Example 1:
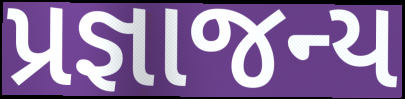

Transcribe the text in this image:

પ્રજ્ઞાજન્ય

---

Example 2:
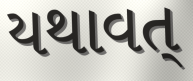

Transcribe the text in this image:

યથાવત્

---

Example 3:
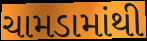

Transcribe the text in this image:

ચામડામાંથી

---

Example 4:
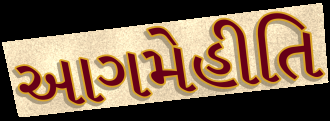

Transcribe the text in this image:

આગમેહીતિ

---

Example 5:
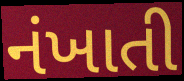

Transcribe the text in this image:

નંખાતી